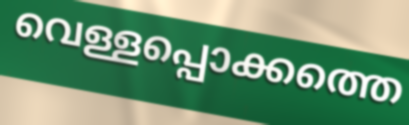
വെള്ളപ്പൊക്കത്തെ